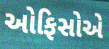
ઓફિસોએ